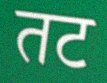
तट